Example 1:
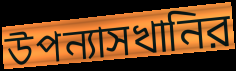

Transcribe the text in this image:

উপন্যাসখানির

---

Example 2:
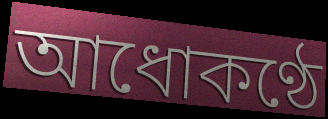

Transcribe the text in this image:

আধোকণ্ঠে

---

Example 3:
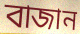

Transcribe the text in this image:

বাজান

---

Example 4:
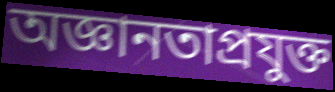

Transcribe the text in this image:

অজ্ঞানতাপ্রযুক্ত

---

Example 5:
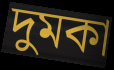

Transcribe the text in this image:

দুমকা